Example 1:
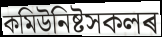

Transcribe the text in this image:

কমিউনিষ্টসকলৰ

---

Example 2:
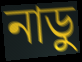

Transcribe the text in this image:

নাডু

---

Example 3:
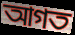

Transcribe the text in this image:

আগত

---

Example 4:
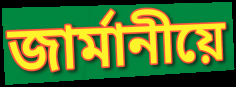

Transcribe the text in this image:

জাৰ্মানীয়ে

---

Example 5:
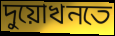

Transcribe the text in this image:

দুয়োখনতে